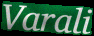
Varali